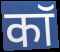
कॉ